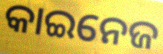
କାଇନେଜ